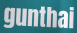
gunthai